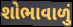
શોભાવાળું